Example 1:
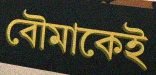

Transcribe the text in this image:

বৌমাকেই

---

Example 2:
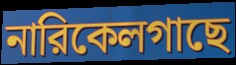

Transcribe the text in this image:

নারিকেলগাছে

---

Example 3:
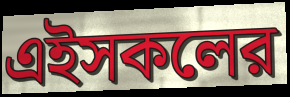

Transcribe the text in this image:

এইসকলের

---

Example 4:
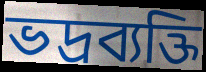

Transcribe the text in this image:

ভদ্রব্যক্তি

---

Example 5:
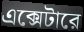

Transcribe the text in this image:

এক্সেটারে